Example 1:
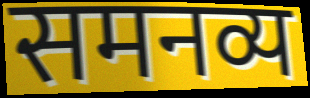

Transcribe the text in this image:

समनव्य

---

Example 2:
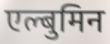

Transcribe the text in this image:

एल्बुमिन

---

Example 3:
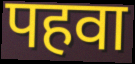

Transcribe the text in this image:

पहवा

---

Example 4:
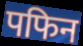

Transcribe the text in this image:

पफिन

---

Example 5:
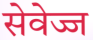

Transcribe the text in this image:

सेवेज्ज